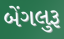
બેંગલુરૂ